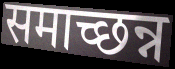
समाच्छन्न